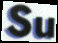
Su